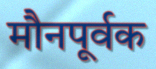
मौनपूर्वक